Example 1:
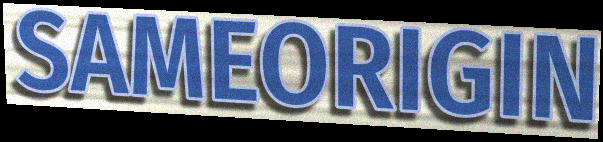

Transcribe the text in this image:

SAMEORIGIN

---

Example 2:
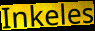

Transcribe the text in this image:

Inkeles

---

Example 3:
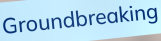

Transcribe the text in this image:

Groundbreaking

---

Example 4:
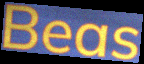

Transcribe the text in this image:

Beas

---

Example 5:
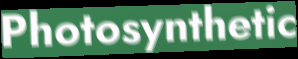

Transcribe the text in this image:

Photosynthetic